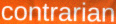
contrarian